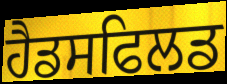
ਹੈਡਸਫਿਲਡ